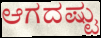
ಆಗದಷ್ಟು